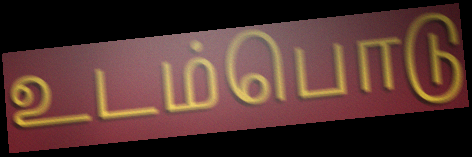
உடம்பொடு